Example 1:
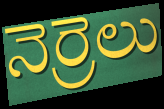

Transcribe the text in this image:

నెర్రెలు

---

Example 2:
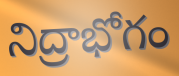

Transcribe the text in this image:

నిద్రాభోగం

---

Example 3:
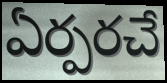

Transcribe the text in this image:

ఏర్పరచే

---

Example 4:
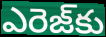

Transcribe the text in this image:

ఎరెజ్‌కు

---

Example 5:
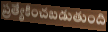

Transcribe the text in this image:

ప్రత్యేకించబడుతుంది